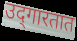
उद्‌गारतात